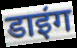
डाइंग